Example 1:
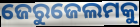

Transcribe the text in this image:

ଜେରୁଜେଲମକୁ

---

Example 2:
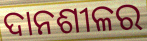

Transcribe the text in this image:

ଦାନଶୀଳର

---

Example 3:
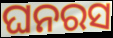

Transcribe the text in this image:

ଘନରସ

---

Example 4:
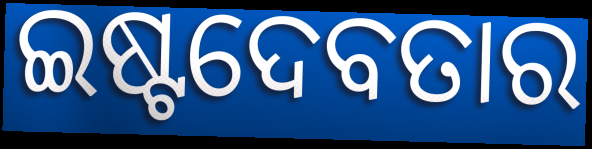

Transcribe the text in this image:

ଇଷ୍ଟଦେବତାର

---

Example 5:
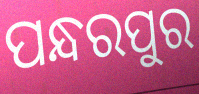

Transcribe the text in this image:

ପନ୍ଧରପୁର